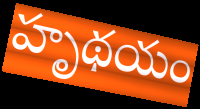
హృథయం